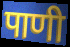
पाणी